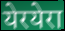
येरयेरा